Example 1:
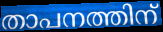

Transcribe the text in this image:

താപനത്തിന്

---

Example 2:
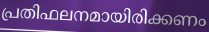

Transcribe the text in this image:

പ്രതിഫലനമായിരിക്കണം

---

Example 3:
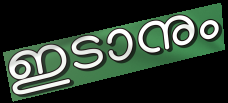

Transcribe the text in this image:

ഇടാനും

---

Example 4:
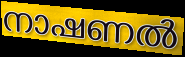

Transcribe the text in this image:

നാഷണൽ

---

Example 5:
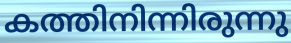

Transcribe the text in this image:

കത്തിനിന്നിരുന്നു